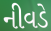
નીવડે